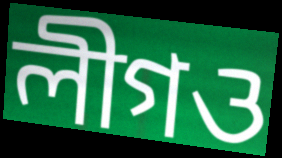
লীগও